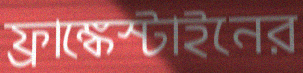
ফ্রাঙ্কেস্টাইনের